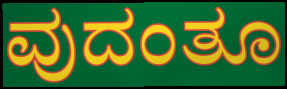
ವುದಂತೂ